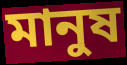
মানুষ